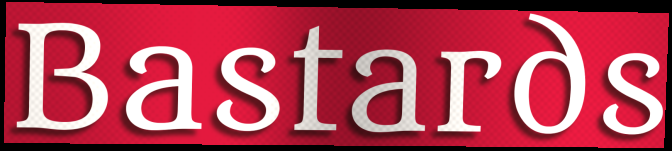
Bastards